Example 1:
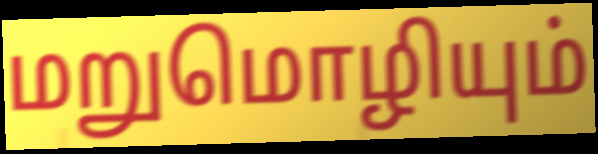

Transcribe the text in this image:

மறுமொழியும்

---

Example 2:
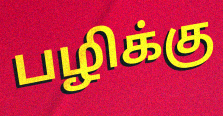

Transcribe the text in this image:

பழிக்கு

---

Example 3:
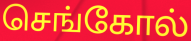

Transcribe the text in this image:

செங்கோல்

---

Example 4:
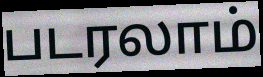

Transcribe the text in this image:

படரலாம்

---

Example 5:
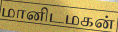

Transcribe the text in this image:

மானிடமகன்